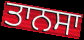
ਤਾਨਸਾ